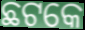
ଛଟକେ